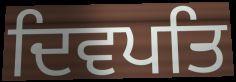
ਦਿਵਪਤਿ